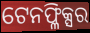
ଟେନଫ୍ଳିକ୍ସର